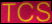
TCS